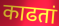
काढतां